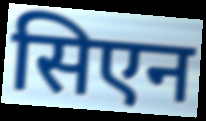
सिएन